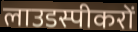
लाउडस्पीकरों